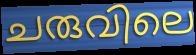
ചരുവിലെ